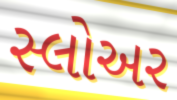
સ્લોઅર